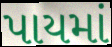
પાયમાં